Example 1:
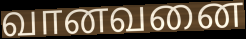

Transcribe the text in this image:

வானவனை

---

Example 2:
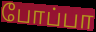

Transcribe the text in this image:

போப்பா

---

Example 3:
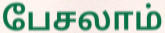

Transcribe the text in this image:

பேசலாம்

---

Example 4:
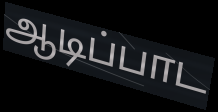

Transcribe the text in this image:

ஆடிப்பாட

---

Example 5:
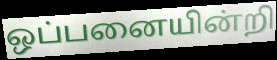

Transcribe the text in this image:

ஒப்பனையின்றி